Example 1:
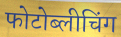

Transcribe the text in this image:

फोटोब्लीचिंग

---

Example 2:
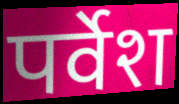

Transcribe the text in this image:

पर्वेश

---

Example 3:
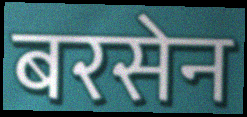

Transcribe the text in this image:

बरसेन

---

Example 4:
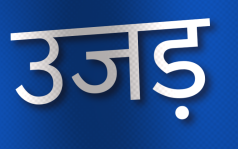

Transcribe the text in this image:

उजड़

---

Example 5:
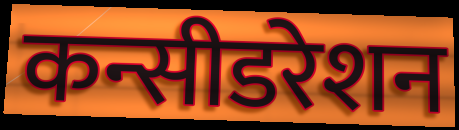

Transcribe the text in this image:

कन्सीडरेशन